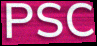
PSC